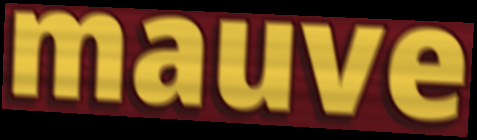
mauve